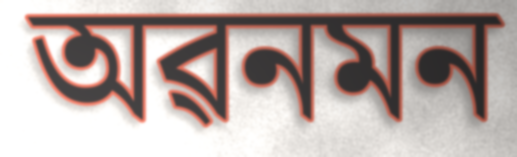
অৱনমন